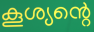
കൂശ്യന്റെ